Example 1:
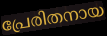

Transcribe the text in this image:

പ്രേരിതനായ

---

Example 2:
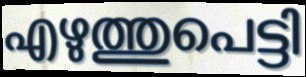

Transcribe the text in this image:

എഴുത്തുപെട്ടി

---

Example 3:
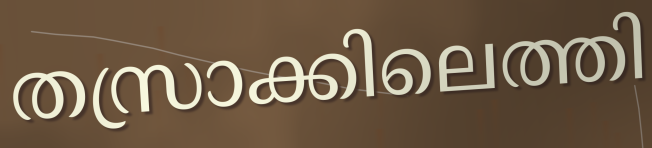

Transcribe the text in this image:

തസ്രാക്കിലെത്തി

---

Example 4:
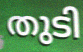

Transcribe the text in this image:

തുടി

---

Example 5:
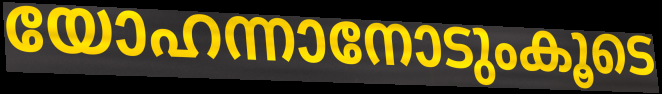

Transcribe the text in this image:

യോഹന്നാനോടുംകൂടെ